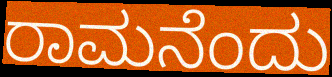
ರಾಮನೆಂದು